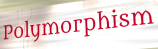
Polymorphism